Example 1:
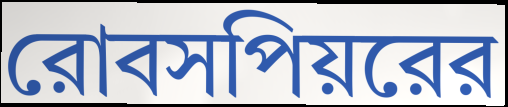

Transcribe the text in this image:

রোবসপিয়রের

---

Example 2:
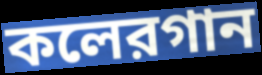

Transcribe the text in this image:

কলেরগান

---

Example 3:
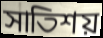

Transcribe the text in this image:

সাতিশয়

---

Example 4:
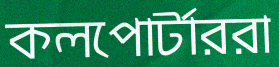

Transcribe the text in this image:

কলপোর্টাররা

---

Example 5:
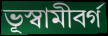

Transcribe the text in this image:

ভূস্বামীবর্গ